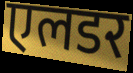
एलडर